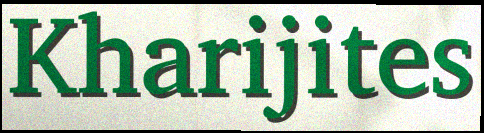
Kharijites